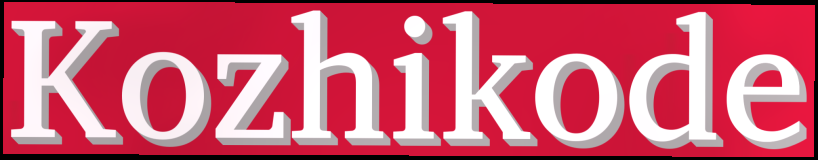
Kozhikode